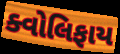
ક્વોલિફાય